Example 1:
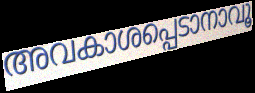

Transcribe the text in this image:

അവകാശപ്പെടാനാവൂ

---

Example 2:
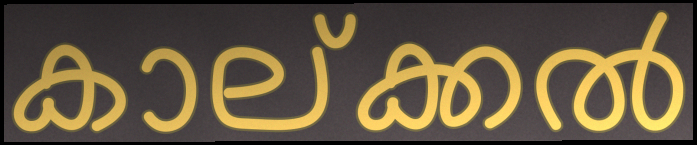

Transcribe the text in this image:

കാല്ക്കൽ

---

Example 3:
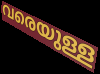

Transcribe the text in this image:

വരെയുള്ള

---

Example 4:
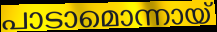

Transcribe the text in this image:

പാടാമൊന്നായ്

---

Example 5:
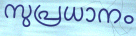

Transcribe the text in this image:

സുപ്രധാനം